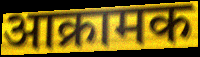
आक्रामक